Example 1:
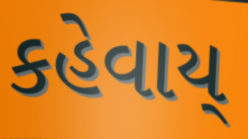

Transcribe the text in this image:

કહેવાય્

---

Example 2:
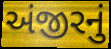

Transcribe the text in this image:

અંજીરનું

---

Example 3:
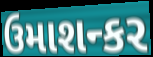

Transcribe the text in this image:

ઉમાશન્કર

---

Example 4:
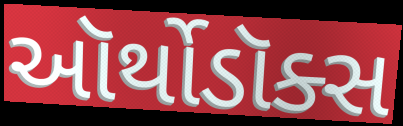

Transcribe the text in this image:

ઑર્થોડૉક્સ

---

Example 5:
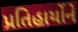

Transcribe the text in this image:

પ્રતિહાર્યોને